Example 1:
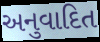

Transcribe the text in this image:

અનુવાદિત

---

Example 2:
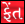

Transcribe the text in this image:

ફેંત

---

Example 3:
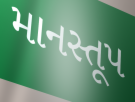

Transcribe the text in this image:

માનસ્તૂપ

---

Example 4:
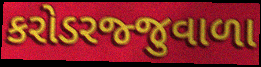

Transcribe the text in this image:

કરોડરજ્જુવાળા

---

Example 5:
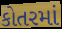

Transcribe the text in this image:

કોતરમાં